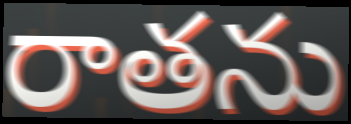
రాతను